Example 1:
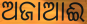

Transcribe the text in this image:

ଅଜାଆଈ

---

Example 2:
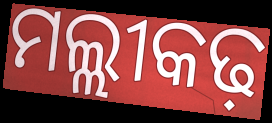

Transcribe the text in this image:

ମଲ୍ଲୀକଢ଼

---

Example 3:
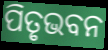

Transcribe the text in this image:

ପିତୃଭବନ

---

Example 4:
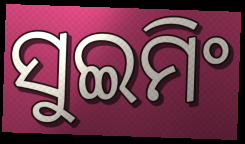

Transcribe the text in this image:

ସୁଇମିଂ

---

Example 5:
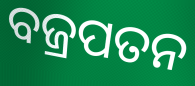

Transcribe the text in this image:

ବଜ୍ରପତନ